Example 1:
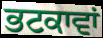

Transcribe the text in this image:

ਭਟਕਾਵਾਂ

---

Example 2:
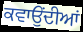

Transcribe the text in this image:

ਕਵਾਉਂਦੀਆਂ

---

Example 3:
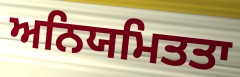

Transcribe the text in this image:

ਅਨਿਯਮਿਤਤਾ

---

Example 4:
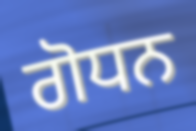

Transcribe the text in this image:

ਗੋਧਨ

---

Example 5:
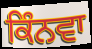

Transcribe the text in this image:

ਕਿੰਨਵਾ